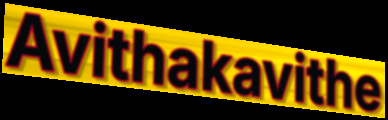
Avithakavithe